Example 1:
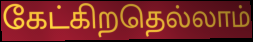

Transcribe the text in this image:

கேட்கிறதெல்லாம்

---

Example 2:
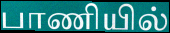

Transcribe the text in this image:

பாணியில்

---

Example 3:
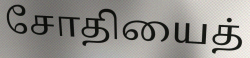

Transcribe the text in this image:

சோதியைத்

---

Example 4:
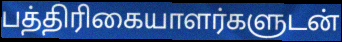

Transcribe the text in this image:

பத்திரிகையாளர்களுடன்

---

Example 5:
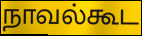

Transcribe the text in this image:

நாவல்கூட